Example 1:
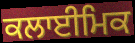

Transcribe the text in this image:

ਕਲਾਈਮਿਕ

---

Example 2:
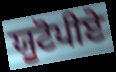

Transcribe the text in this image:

ਯੂਟੋਪੀਏ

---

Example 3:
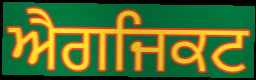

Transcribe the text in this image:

ਐਗਜਿਕਟ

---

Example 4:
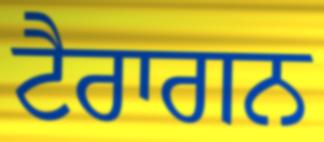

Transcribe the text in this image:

ਟੈਰਾਗਨ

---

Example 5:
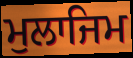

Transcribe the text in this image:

ਮੁਲਾਜਿਮ